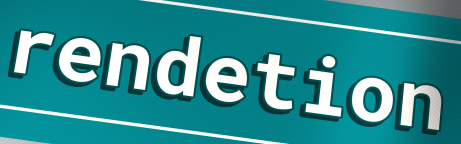
rendetion